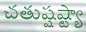
చతుష్షష్ట్యా